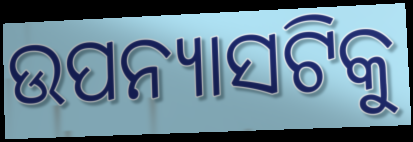
ଉପନ୍ୟାସଟିକୁ